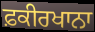
ਫ਼ਕੀਰਖਾਨਾ